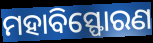
ମହାବିସ୍ଫୋରଣ